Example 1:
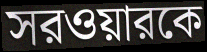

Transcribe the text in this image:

সরওয়ারকে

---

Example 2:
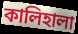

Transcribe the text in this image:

কালিহালা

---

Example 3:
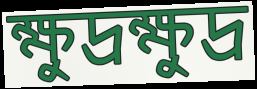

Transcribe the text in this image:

ক্ষুদ্রক্ষুদ্র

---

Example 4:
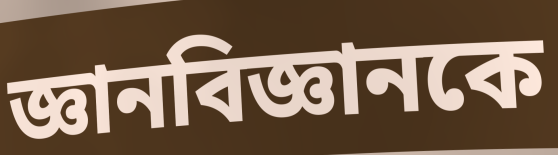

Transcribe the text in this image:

জ্ঞানবিজ্ঞানকে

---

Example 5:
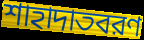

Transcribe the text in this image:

শাহাদাতবরণ